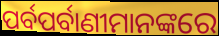
ପର୍ବପର୍ବାଣୀମାନଙ୍କରେ